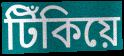
টিঁকিয়ে